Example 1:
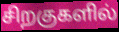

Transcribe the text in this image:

சிறகுகளில்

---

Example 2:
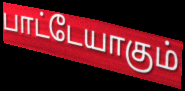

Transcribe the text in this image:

பாட்டேயாகும்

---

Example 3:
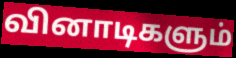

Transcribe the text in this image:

வினாடிகளும்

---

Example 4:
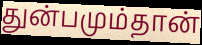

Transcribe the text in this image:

துன்பமும்தான்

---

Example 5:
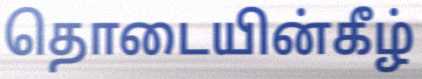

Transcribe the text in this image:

தொடையின்கீழ்